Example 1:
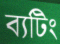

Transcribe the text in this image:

ব্যটিং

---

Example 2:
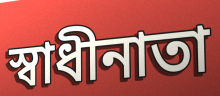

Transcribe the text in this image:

স্বাধীনাতা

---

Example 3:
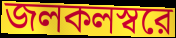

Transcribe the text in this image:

জলকলস্বরে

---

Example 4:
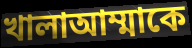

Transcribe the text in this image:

খালাআম্মাকে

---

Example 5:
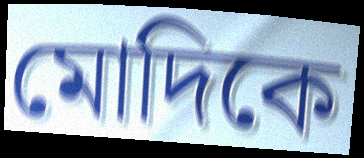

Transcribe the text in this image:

মোদিকে